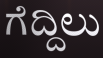
ಗೆದ್ದಿಲು